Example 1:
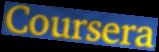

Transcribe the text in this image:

Coursera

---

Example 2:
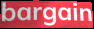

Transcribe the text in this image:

bargain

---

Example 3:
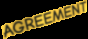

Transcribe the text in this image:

AGREEMENT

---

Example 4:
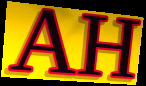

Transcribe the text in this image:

AH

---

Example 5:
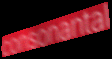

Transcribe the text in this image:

consonantal